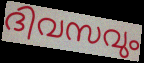
ദിവസവും